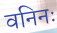
वनिनः